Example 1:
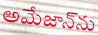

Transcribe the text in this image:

అమేజాన్‌ను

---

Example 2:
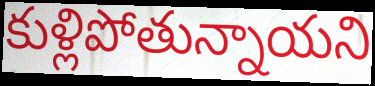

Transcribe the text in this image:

కుళ్లిపోతున్నాయని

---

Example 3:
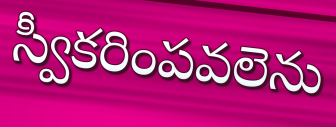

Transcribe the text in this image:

స్వీకరింపవలెను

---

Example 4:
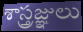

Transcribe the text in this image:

శాస్త్రజ్ఞులు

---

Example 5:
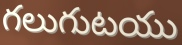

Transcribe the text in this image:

గలుగుటయు